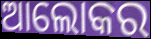
ଆଲୋକର